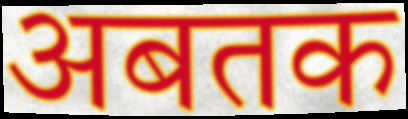
अबतक